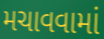
મચાવવામાં